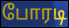
போரடி